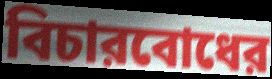
বিচারবোধের